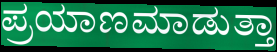
ಪ್ರಯಾಣಮಾಡುತ್ತಾ